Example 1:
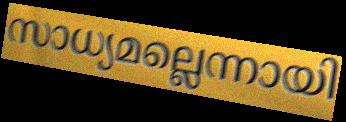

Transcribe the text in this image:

സാധ്യമല്ലെന്നായി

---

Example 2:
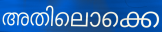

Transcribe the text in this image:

അതിലൊക്കെ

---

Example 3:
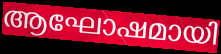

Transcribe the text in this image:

ആഘോഷമായി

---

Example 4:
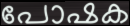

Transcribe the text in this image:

പോഷക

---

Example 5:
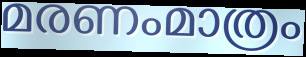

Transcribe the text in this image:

മരണംമാത്രം